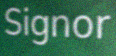
Signor